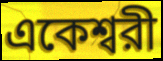
একেশ্বরী